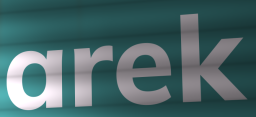
arek